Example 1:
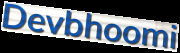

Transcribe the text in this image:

Devbhoomi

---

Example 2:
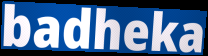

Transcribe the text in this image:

badheka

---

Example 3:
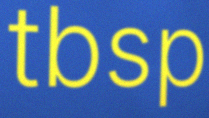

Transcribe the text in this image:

tbsp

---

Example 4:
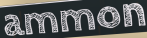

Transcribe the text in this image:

ammon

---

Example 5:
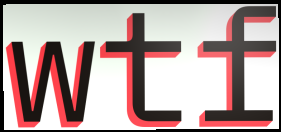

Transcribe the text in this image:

wtf